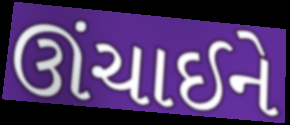
ઊંચાઈને